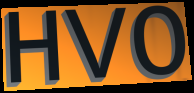
HVO